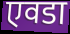
एवडा